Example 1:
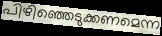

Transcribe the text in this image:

പിഴിഞ്ഞെടുക്കണമെന്ന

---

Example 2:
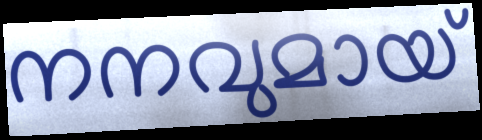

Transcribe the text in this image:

നനവുമായ്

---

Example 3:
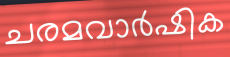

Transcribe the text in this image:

ചരമവാർഷിക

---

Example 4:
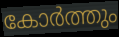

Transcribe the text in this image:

കോർത്തും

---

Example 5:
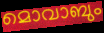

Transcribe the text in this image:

മൊവാബും